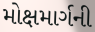
મોક્ષમાર્ગની